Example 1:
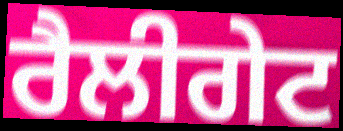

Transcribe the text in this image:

ਰੈਲੀਗੇਟ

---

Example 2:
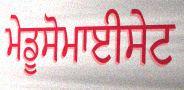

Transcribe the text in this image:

ਮੇਡੂਸੋਮਾਈਸੇਟ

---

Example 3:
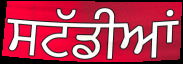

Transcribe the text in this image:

ਸਟੱਡੀਆਂ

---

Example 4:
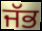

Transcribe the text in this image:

ਜੱਭ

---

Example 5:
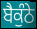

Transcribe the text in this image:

ਬੈਕੁੰਠੇ